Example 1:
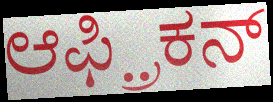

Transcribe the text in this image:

ಆಫ಼್ರಿಕನ್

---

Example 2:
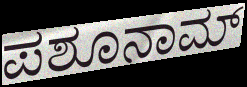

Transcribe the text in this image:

ಪಶೂನಾಮ್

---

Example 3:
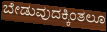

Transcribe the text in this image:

ಬೇಡುವುದಕ್ಕಿಂತಲೂ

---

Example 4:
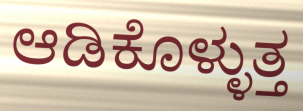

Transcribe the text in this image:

ಆಡಿಕೊಳ್ಳುತ್ತ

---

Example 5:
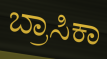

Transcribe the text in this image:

ಬ್ರಾಸಿಕಾ